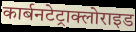
कार्बनटेट्राक्लोराइड